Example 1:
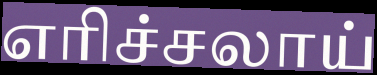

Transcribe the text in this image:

எரிச்சலாய்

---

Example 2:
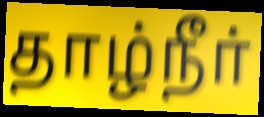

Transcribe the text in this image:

தாழ்நீர்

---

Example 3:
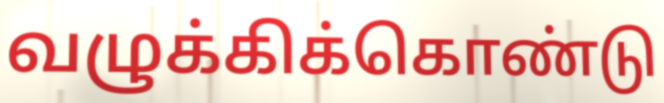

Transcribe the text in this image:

வழுக்கிக்கொண்டு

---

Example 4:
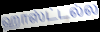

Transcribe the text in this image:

ஹாஸ்ட்டல்ல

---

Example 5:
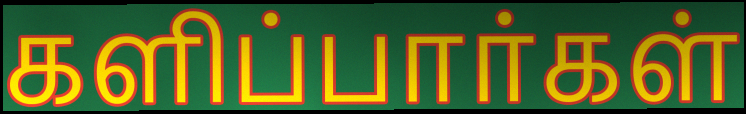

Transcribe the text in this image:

களிப்பார்கள்